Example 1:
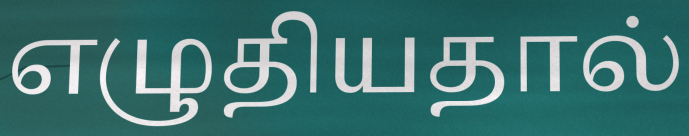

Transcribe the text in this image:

எழுதியதால்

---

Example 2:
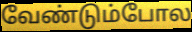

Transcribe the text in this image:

வேண்டும்போல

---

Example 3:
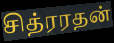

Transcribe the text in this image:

சித்ரரதன்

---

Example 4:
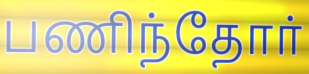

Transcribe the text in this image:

பணிந்தோர்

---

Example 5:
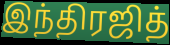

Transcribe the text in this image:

இந்திரஜித்